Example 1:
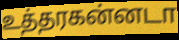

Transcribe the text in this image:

உத்தரகன்னடா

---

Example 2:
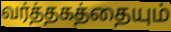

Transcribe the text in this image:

வர்த்தகத்தையும்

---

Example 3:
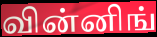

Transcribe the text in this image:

வின்னிங்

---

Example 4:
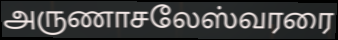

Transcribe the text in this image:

அருணாசலேஸ்வரரை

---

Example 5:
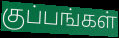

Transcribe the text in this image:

குப்பங்கள்